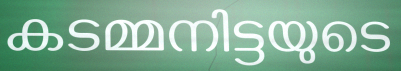
കടമ്മനിട്ടയുടെ